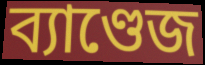
ব্যাণ্ডেজ